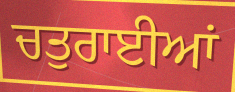
ਚਤੁਰਾਈਆਂ